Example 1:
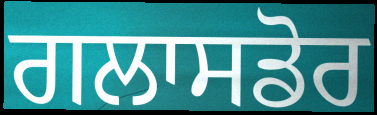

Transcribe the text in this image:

ਗਲਾਸਡੋਰ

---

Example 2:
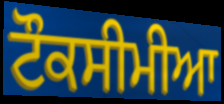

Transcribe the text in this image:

ਟੌਕਸੀਮੀਆ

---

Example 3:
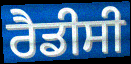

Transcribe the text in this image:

ਰੈਡੀਸੀ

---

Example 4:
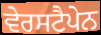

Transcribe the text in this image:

ਵੇਰਸਟੈਪੇਨ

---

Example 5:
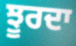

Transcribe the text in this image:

ਝੂਰਦਾ